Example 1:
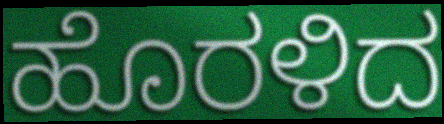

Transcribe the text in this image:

ಹೊರಳಿದ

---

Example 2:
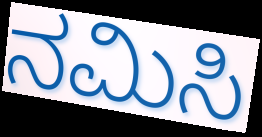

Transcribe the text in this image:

ನಮಿಸಿ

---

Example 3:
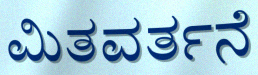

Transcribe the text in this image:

ಮಿತವರ್ತನೆ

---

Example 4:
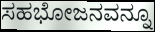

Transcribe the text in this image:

ಸಹಭೋಜನವನ್ನೂ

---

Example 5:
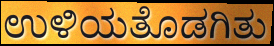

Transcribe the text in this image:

ಉಳಿಯತೊಡಗಿತು